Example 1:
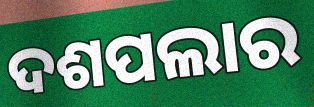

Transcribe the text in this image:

ଦଶପଲାର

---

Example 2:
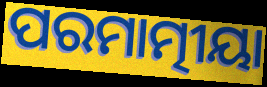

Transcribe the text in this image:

ପରମାତ୍ମୀୟା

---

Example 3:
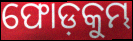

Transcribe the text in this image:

ଫୋଡ଼କୁମ୍ଭ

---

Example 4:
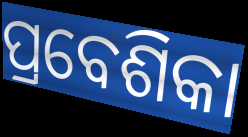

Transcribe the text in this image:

ପ୍ରବେଶିକା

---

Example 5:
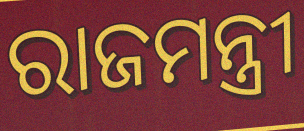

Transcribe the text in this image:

ରାଜମନ୍ତ୍ରୀ